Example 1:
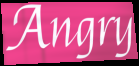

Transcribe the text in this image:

Angry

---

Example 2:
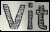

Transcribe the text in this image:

Vit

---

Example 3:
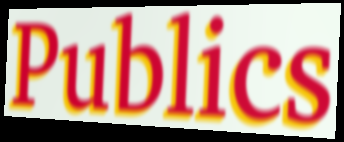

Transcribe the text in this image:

Publics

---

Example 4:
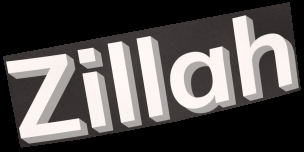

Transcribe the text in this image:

Zillah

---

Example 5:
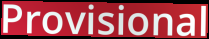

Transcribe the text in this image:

Provisional